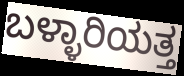
ಬಳ್ಳಾರಿಯತ್ತ